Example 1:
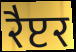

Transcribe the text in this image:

रैप्टर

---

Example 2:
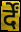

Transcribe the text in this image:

र्दें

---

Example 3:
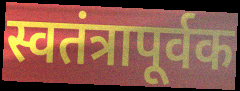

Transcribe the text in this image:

स्वतंत्रापूर्वक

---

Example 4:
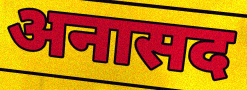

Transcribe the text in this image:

अनासद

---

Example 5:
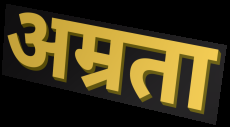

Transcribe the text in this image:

अम्रता